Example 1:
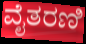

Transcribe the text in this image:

ವೈತರಣಿ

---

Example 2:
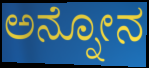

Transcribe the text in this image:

ಅನ್ನೋನ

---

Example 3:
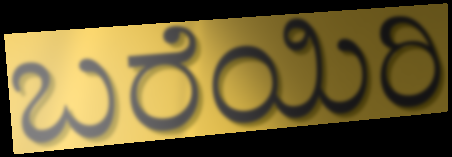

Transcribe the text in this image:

ಬರೆಯಿರಿ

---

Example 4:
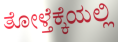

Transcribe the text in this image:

ತೋಳ್ತೆಕ್ಕೆಯಲ್ಲಿ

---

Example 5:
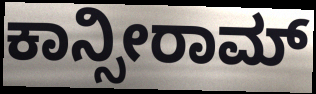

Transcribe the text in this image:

ಕಾನ್ಸೀರಾಮ್